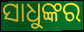
ସାଧୁଙ୍କର